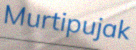
Murtipujak